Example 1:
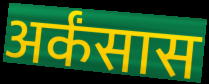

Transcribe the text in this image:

अर्कंसास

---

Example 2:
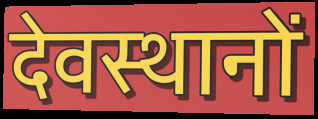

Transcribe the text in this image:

देवस्थानों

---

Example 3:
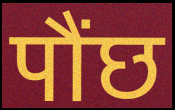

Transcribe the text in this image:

पौंछ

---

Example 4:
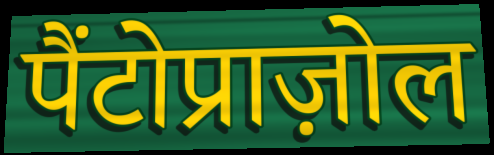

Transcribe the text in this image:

पैंटोप्राज़ोल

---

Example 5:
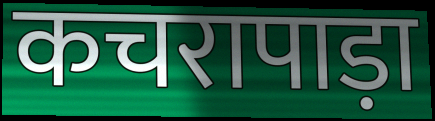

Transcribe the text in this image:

कचरापाड़ा